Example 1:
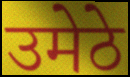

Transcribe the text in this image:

उमेठे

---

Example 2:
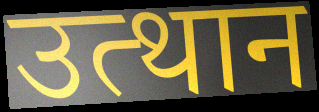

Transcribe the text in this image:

उत्थान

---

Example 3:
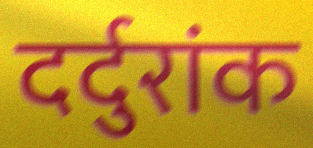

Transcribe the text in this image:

दर्दुरांक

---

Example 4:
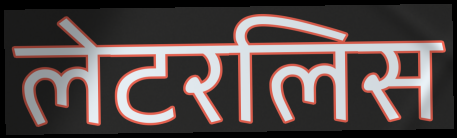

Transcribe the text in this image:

लेटरलिस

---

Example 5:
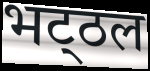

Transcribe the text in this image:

भट्‌ठल